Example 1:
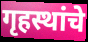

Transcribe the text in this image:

गृहस्थांचे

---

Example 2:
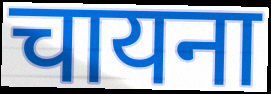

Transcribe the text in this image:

चायना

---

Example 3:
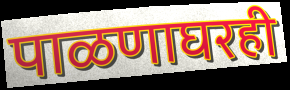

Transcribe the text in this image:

पाळणाघरही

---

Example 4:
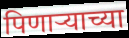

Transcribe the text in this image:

पिणाऱ्याच्या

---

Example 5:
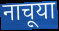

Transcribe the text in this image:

नाचूया